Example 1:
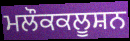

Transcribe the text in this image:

ਮਲੌਕਕਲੂਸ਼ਨ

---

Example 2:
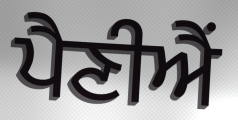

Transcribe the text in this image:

ਪੈਣੀਐਂ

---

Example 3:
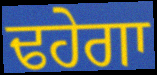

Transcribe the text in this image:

ਢਹੇਗਾ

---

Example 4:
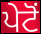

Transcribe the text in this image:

ਪੇਟੋਂ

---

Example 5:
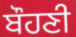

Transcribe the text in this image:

ਬੌਹਣੀ